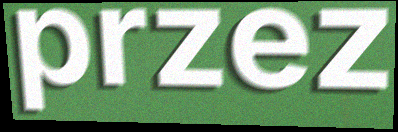
przez